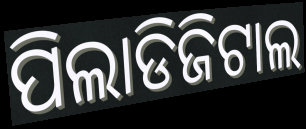
ପିଲାଡିଜିଟାଲ